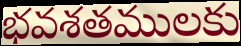
భవశతములకు